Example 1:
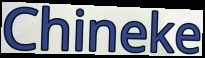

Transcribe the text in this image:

Chineke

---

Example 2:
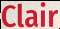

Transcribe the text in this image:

Clair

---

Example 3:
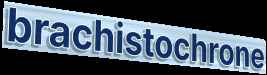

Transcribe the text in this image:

brachistochrone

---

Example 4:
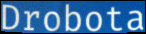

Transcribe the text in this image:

Drobota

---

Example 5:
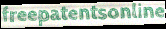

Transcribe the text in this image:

freepatentsonline